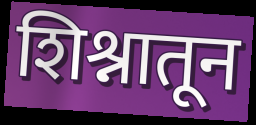
शिश्नातून